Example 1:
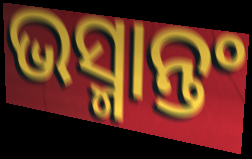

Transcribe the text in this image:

ଭସ୍ମାନ୍ତଂ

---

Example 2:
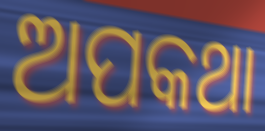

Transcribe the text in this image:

ଅପକଥା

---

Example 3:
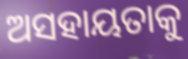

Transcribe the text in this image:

ଅସହାୟତାକୁ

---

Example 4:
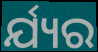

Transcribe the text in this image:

ର୍ଯ୍ୟର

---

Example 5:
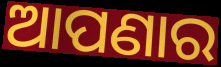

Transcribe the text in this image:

ଆପଣାର